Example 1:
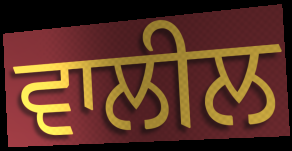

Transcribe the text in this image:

ਵਾਲੀਲ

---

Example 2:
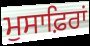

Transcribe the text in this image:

ਮੁਸਾਫ਼ਿਰਾਂ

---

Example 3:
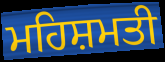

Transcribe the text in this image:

ਮਹਿਸ਼ਮਤੀ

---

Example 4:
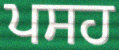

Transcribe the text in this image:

ਪਸਹ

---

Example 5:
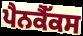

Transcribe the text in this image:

ਪੈਨਕੈੱਕਸ